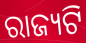
ରାଜ୍ୟଟି